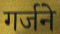
गर्जने